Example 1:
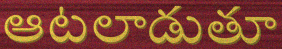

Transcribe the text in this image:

ఆటలాడుతూ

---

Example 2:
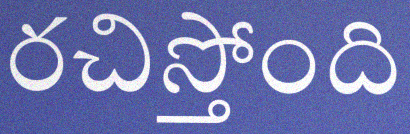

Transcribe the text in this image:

రచిస్తోంది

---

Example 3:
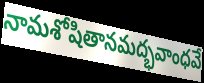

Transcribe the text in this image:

నామశోషితానమద్భవాంధవే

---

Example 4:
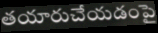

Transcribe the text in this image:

తయారుచేయడంపై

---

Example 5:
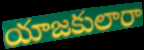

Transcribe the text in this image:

యాజకులారా